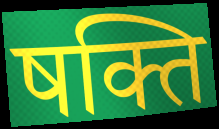
षक्ति